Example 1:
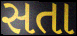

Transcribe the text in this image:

સતા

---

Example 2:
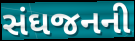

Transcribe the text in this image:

સંઘજનની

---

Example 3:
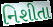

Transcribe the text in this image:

નિશીતા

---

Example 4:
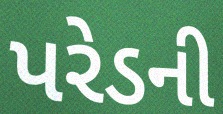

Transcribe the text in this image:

પરેડની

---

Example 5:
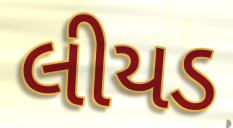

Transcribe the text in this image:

લીયડ